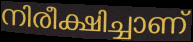
നിരീക്ഷിച്ചാണ്